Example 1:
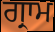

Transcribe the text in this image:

ਗ੍ਰਾਮ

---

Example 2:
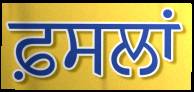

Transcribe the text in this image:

ਫ਼ਸਲਾਂ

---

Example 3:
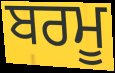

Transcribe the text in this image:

ਬਰਮੂ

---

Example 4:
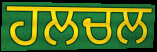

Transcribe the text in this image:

ਹਲਚਲ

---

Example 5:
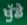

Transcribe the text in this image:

ਖੁੱਡੇ